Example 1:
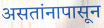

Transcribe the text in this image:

असतांनापासून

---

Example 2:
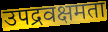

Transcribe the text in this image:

उपद्रवक्षमता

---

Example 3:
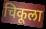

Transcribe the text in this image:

चिकूला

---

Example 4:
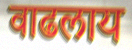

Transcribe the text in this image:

वाढलाय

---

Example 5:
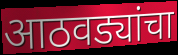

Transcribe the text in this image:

आठवड्यांचा